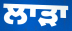
ਲਾੜਾ